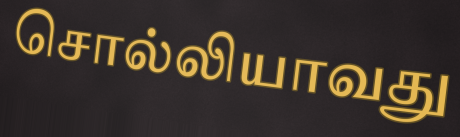
சொல்லியாவது